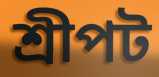
শ্রীপট